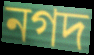
নগদ